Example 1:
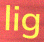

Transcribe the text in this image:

lig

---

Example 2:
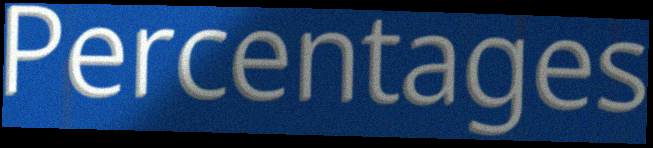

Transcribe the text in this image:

Percentages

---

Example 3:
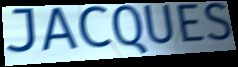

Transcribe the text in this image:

JACQUES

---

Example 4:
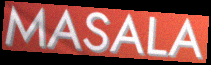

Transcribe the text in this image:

MASALA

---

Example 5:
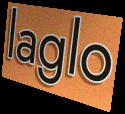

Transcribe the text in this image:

laglo